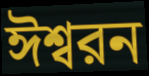
ঈশ্বরন